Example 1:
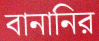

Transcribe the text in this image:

বানানির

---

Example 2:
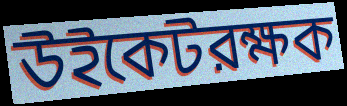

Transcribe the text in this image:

উইকেটরক্ষক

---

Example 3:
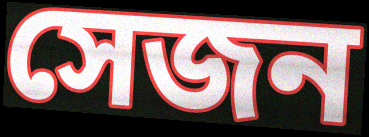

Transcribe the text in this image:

সেজন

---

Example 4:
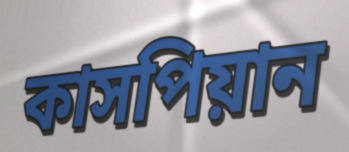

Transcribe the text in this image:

কাসপিয়ান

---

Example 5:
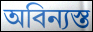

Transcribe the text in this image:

অবিন্যস্ত